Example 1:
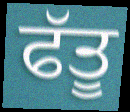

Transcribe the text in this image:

ਫੱਤੂ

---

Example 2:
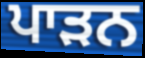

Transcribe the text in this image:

ਪਾੜਨ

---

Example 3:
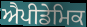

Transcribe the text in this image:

ਐਪੀਡੇਮਿਕ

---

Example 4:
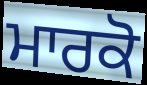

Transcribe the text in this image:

ਮਾਰਕੋ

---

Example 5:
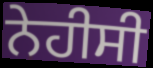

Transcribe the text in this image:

ਨੇਹੀਸੀ